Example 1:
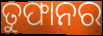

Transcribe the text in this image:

ତୁଫାନର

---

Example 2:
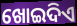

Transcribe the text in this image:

ଖୋଇଦିଏ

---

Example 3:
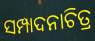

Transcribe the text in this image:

ସମ୍ପାଦନାଚିତ୍ର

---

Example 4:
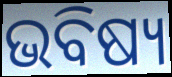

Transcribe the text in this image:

ଭବିଷ୍ଯ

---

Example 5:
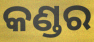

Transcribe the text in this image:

କଣ୍ଡର